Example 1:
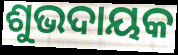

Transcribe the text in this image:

ଶୁଭଦାୟକ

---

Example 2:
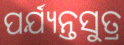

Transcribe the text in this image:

ପର୍ଯ୍ୟନ୍ତସୁତ୍ର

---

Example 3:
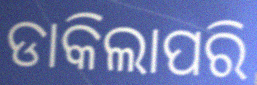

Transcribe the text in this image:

ଡାକିଲାପରି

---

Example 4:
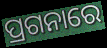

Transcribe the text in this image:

ପ୍ରଗନାରେ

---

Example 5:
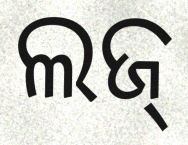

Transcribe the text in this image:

ଲଜ୍